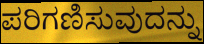
ಪರಿಗಣಿಸುವುದನ್ನು